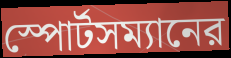
স্পোর্টসম্যানের